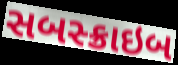
સબસ્ક્રાઇબ